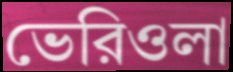
ভেরিওলা